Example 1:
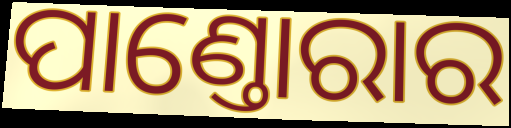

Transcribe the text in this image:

ପାଣ୍ତୋରାର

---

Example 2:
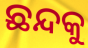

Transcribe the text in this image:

ଛନ୍ଦକୁ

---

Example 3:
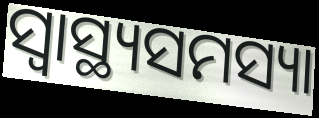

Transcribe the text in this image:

ସ୍ୱାସ୍ଥ୍ୟସମସ୍ୟା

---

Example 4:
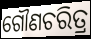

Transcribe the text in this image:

ଗୌଣଚରିତ୍ର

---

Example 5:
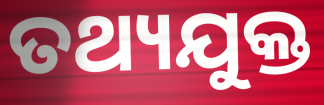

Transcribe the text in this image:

ତଥ୍ୟଯୁକ୍ତ